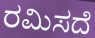
ರಮಿಸದೆ